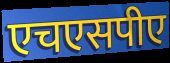
एचएसपीए